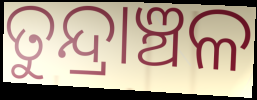
ତୁନ୍ଦ୍ରାଞ୍ଚଳ